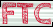
FTC